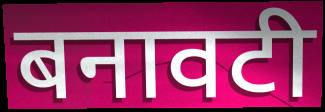
बनावटी